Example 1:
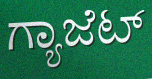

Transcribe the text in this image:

ಗ್ಯಾಜೆಟ್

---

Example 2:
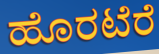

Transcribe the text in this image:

ಹೊರಟೆರೆ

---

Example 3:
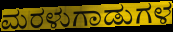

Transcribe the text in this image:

ಮರಳುಗಾಡುಗಳ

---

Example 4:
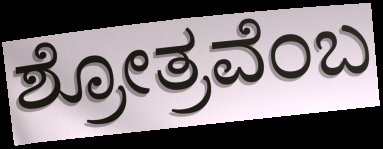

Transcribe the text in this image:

ಶ್ರೋತ್ರವೆಂಬ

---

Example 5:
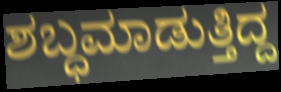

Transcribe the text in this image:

ಶಬ್ಧಮಾಡುತ್ತಿದ್ದ